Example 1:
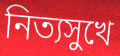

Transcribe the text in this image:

নিত্যসুখে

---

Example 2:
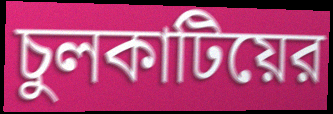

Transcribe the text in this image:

চুলকাটিয়ের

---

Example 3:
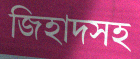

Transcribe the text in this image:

জিহাদসহ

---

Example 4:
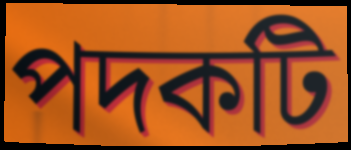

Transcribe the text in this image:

পদকটি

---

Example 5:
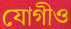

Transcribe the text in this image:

যোগীও